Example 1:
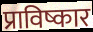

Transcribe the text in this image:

प्राविष्कार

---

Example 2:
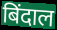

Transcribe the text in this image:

बिंदाल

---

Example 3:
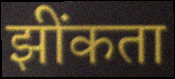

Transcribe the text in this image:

झींकता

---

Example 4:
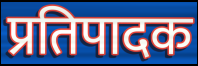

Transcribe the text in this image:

प्रतिपादक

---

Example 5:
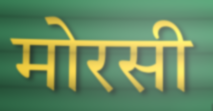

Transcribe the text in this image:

मोरसी